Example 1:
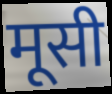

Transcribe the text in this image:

मूसी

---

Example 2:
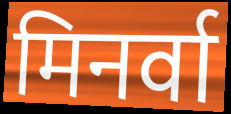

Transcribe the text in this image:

मिनर्वा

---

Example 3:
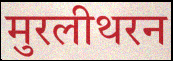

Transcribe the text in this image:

मुरलीथरन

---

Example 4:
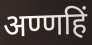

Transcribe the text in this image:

अण्णहिं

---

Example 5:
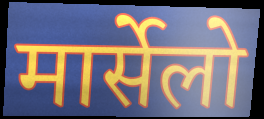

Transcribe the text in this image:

मार्सेलो